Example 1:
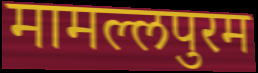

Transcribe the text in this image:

मामल्लपुरम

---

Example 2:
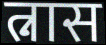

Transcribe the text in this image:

त्नास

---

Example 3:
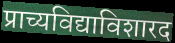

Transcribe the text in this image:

प्राच्यविद्याविशारद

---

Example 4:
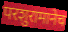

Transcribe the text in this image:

परशुरामानेच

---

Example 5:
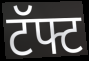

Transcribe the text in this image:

टॅफ्ट